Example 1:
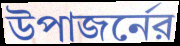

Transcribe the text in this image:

উপাজর্নের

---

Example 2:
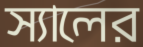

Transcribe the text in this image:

স্যালের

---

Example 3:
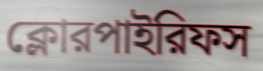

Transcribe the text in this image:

ক্লোরপাইরিফস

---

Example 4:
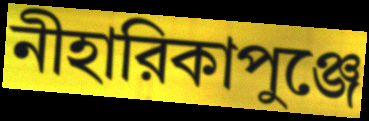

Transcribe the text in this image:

নীহারিকাপুঞ্জে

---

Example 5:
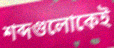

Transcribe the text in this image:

শব্দগুলোকেই